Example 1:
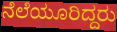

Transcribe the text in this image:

ನೆಲೆಯೂರಿದ್ದರು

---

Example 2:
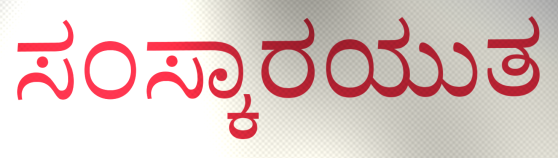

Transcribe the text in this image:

ಸಂಸ್ಕಾರಯುತ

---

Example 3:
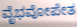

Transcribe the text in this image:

ವೈಭವೋಪೇತ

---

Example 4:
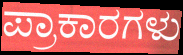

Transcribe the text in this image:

ಪ್ರಾಕಾರಗಳು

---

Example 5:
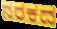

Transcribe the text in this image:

ನರಕದ